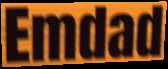
Emdad